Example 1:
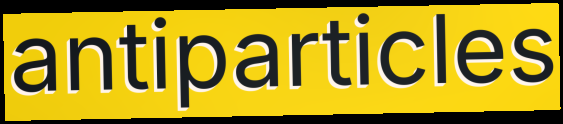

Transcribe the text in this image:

antiparticles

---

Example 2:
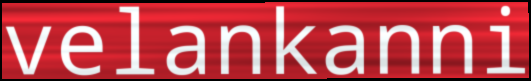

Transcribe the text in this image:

velankanni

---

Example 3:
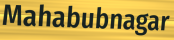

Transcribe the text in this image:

Mahabubnagar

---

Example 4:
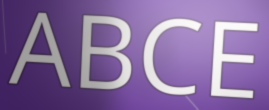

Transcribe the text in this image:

ABCE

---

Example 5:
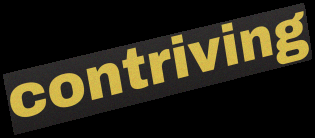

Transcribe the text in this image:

contriving